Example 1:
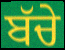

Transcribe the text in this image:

ਬੱਚੇ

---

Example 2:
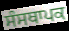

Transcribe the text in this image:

ਸੰਸਥਾਪਕ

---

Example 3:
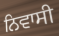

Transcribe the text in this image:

ਨਿਵਾਸੀ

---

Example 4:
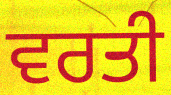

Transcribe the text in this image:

ਵਰਤੀ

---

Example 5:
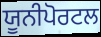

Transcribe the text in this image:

ਯੂਨੀਪੋਰਟਲ